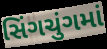
સિંગચુંગમાં